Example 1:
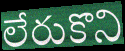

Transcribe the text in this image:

లేరుకొని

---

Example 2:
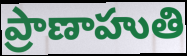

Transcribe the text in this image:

ప్రాణాహుతి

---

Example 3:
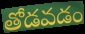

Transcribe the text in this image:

తోడవడం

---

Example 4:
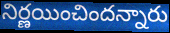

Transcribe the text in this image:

నిర్ణయించిందన్నారు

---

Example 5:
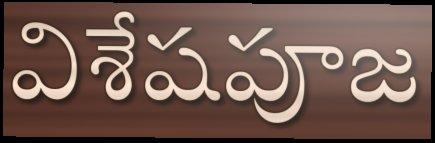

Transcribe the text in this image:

విశేషపూజ